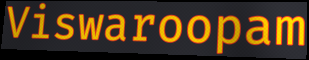
Viswaroopam